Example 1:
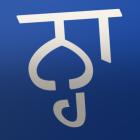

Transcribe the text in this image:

ਨ੍ਹਾ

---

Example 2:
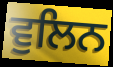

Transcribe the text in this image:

ਵੁਲਿਨ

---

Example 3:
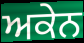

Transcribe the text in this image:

ਅਕੇਨ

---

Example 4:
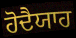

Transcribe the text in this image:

ਹੋਦੈਯਾਹ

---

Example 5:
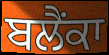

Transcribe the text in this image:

ਬਲੈਂਕਾ